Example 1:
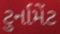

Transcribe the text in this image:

ટુર્નામેંટ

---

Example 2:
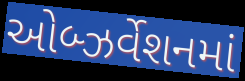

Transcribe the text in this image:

ઓબ્ઝર્વેશનમાં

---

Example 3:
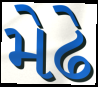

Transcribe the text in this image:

મેઢે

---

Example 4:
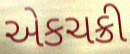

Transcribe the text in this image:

એકચક્રી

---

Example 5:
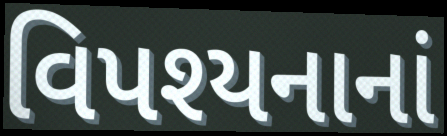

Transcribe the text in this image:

વિપશ્યનાનાં